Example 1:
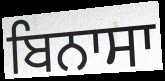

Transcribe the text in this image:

ਬਿਨਾਸਾ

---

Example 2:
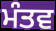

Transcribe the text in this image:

ਮੰਤਵ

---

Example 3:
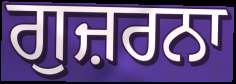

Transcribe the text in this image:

ਗੁਜ਼ਰਨਾ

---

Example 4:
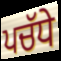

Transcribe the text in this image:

ਪਚੱਧੇ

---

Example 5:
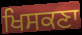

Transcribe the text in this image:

ਖਿਸਕਣਾ